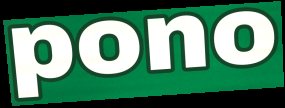
pono